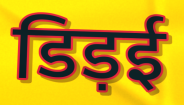
डिड़ई